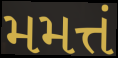
મમત્તં